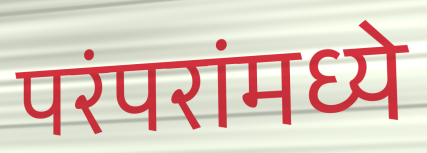
परंपरांमध्ये